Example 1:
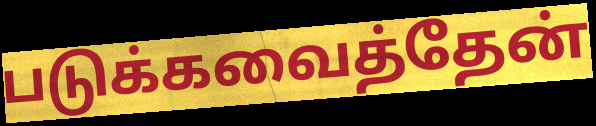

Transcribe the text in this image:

படுக்கவைத்தேன்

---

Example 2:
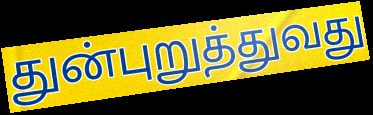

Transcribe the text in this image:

துன்புறுத்துவது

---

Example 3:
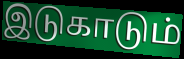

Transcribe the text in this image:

இடுகாடும்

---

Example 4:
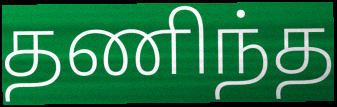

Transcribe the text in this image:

தணிந்த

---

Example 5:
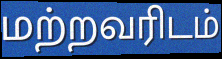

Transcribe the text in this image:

மற்றவரிடம்